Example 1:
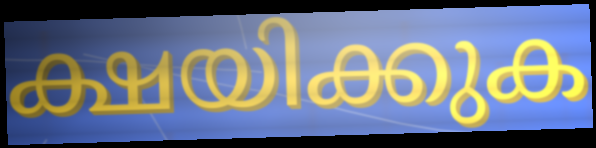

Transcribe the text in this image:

ക്ഷയിക്കുക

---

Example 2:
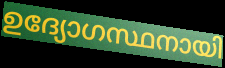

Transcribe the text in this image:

ഉദ്യോഗസ്ഥനായി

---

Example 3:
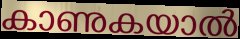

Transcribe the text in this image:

കാണുകയാൽ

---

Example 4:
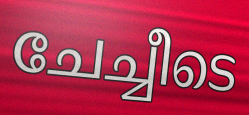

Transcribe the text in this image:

ചേച്ചീടെ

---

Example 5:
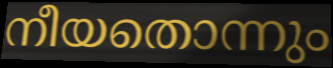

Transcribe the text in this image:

നീയതൊന്നും